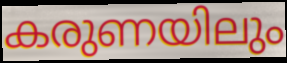
കരുണയിലും